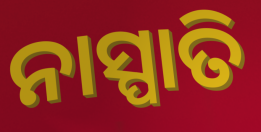
ନାସ୍ପାତି